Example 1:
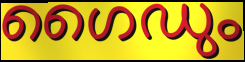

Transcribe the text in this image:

ഗൈഡും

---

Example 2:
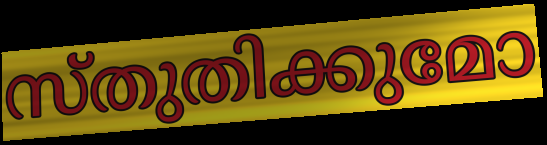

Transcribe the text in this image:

സ്തുതിക്കുമോ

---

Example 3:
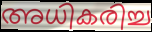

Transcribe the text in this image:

അധികരിച്ച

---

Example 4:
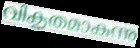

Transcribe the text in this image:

വികൃതമാകുന്നു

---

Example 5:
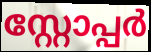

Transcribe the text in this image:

സ്റ്റോപ്പർ